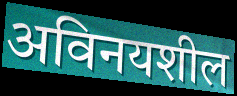
अविनयशील